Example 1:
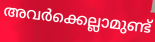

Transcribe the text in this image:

അവർക്കെല്ലാമുണ്ട്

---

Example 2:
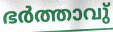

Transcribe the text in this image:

ഭർത്താവു്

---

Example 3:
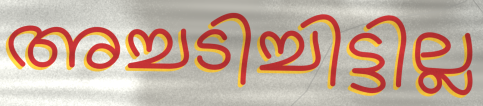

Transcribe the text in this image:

അച്ചടിച്ചിട്ടില്ല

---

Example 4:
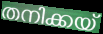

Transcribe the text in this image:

തനിക്കയ്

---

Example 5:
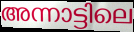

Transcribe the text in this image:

അന്നാട്ടിലെ